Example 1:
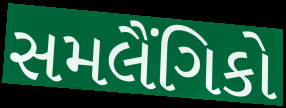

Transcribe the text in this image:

સમલૈંગિકો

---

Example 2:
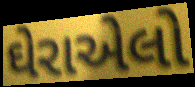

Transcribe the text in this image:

ઘેરાએલો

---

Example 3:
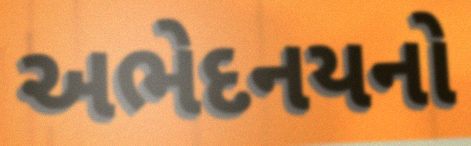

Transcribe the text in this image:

અભેદનયનો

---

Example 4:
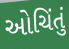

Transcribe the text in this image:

ઓચિંતું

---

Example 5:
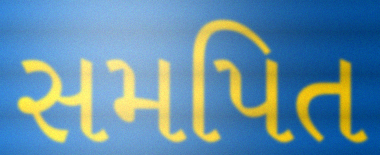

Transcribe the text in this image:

સમપિત